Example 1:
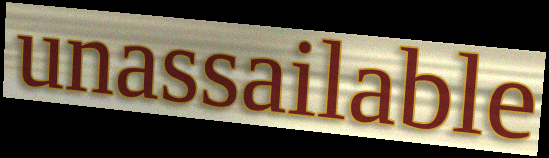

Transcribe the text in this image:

unassailable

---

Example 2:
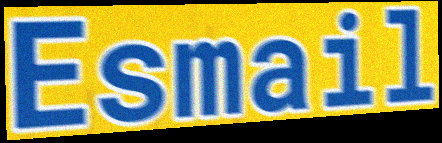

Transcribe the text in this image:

Esmail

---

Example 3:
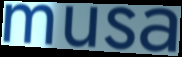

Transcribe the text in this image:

musa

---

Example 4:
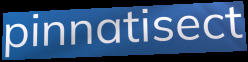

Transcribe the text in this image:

pinnatisect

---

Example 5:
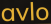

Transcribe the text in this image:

avlo